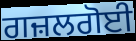
ਗਜ਼ਲਗੋਈ